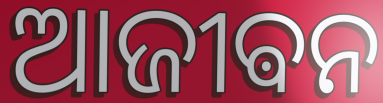
ଆଜୀଵନ